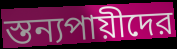
স্তন্যপায়ীদের